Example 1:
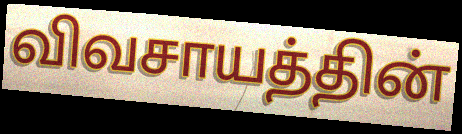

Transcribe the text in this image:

விவசாயத்தின்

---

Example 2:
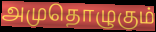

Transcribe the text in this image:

அமுதொழுகும்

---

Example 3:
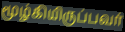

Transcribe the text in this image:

மூழ்கியிருப்பவர்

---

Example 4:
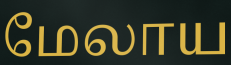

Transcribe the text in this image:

மேலாய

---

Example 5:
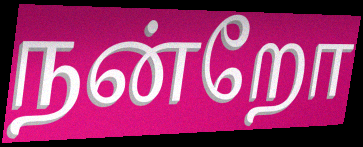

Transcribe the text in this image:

நன்றோ